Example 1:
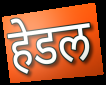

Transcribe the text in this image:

हेडल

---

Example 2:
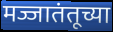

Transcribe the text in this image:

मज्जातंतूच्या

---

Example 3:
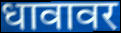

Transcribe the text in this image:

धावावर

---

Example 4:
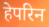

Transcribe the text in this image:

हेपरिन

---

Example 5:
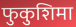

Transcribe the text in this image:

फुकुशिमा